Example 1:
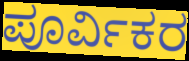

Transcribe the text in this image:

ಪೂರ್ವಿಕರ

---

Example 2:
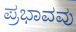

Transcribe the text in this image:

ಪ್ರಭಾವವು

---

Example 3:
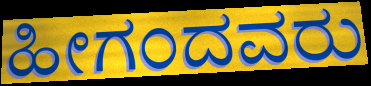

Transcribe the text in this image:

ಹೀಗಂದವರು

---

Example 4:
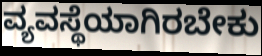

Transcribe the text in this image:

ವ್ಯವಸ್ಥೆಯಾಗಿರಬೇಕು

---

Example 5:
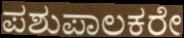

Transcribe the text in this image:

ಪಶುಪಾಲಕರೇ